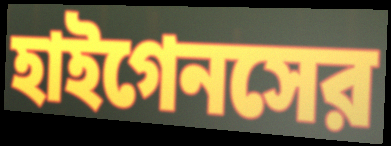
হাইগেনসের